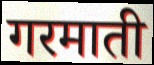
गरमाती